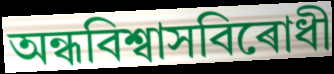
অন্ধবিশ্বাসবিৰোধী